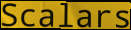
Scalars